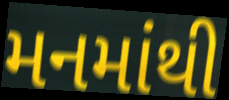
મનમાંથી